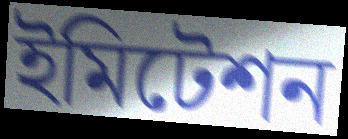
ইমিটেশন